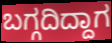
ಬಗ್ಗದಿದ್ದಾಗ